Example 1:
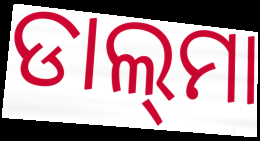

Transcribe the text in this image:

ଡାଲ୍‍ମା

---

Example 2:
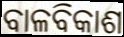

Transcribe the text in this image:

ବାଳବିକାଶ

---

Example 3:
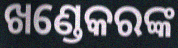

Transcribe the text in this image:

ଖଣ୍ଡେକରଙ୍କ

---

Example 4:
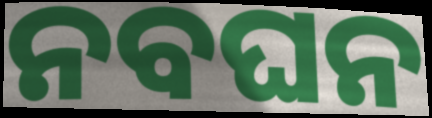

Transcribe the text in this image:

ନବଘନ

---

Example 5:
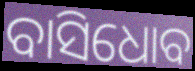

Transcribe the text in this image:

ବାସିଧୋବ